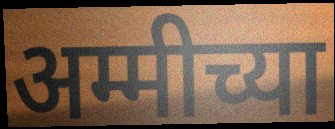
अम्मीच्या